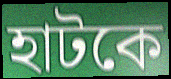
হাটকে